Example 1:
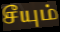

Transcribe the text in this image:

சீயும்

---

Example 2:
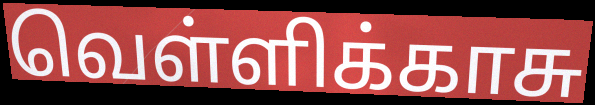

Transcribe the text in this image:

வெள்ளிக்காசு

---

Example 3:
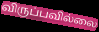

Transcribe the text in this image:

விருப்பவில்லை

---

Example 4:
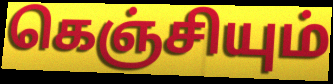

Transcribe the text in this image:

கெஞ்சியும்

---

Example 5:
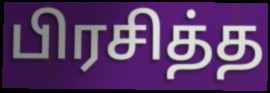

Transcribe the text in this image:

பிரசித்த